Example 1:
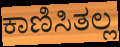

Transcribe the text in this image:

ಕಾಣಿಸಿತಲ್ಲ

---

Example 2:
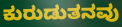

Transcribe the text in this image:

ಕುರುಡುತನವು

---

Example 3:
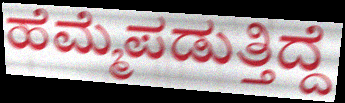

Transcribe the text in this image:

ಹೆಮ್ಮೆಪಡುತ್ತಿದ್ದೆ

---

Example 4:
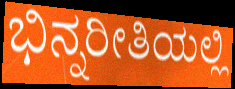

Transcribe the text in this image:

ಭಿನ್ನರೀತಿಯಲ್ಲಿ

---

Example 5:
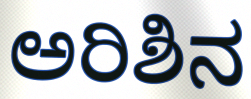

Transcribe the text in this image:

ಅರಿಶಿನ